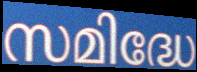
സമിദ്ധേ